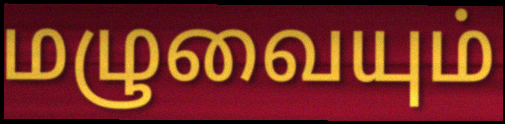
மழுவையும்